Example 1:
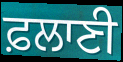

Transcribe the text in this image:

ਫ਼ਲਾਣੀ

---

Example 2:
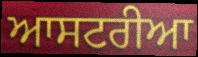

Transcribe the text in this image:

ਆਸਟਰੀਆ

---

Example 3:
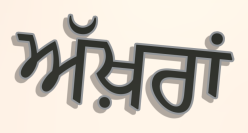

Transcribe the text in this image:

ਅੱਖ਼ਰਾਂ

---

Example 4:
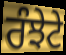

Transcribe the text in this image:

ਰੰਝੇਟੇ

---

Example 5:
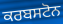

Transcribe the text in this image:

ਕਰਬਸਟੋਨ